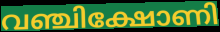
വഞ്ചിക്ഷോണി